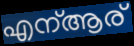
എന്ആര്